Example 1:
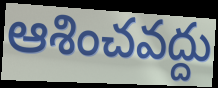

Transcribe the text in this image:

ఆశించవద్దు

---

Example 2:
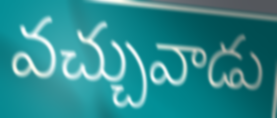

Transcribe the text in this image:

వచ్చువాడు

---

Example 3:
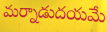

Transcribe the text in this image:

మర్నాడుదయమే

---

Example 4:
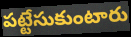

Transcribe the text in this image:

పట్టేసుకుంటారు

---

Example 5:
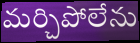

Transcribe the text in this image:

మర్చిపోలేను